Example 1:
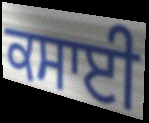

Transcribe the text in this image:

ਕਸਾਈ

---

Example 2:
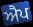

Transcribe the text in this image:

ਐਪ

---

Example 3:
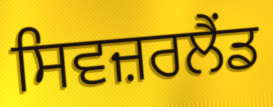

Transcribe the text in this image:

ਸਿਵਜ਼ਰਲੈਂਡ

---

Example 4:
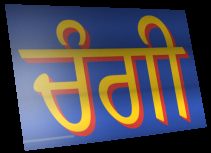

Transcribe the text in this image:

ਚੰਗੀ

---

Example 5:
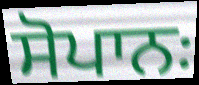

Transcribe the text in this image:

ਸੋਪਾਨਃ